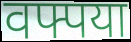
वफ्पया